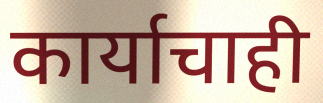
कार्याचाही